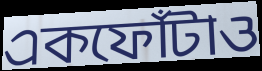
একফোঁটাও